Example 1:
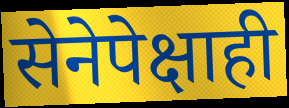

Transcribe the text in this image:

सेनेपेक्षाही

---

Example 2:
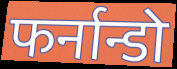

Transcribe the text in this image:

फर्नान्डो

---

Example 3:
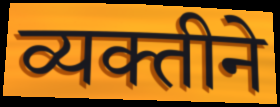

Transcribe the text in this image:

व्यक्तीने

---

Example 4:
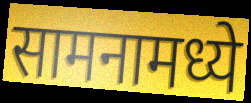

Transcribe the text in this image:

सामनामध्ये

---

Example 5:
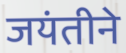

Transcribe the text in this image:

जयंतीने